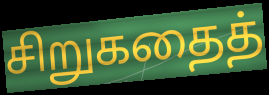
சிறுகதைத்